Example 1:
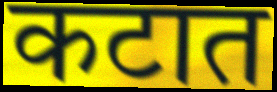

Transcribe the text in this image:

कटात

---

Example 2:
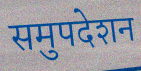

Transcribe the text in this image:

समुपदेशन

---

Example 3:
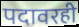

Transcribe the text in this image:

पदावरही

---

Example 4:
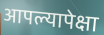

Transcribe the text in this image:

आपल्यापेक्षा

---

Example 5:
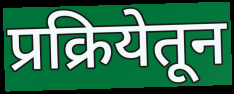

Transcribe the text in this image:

प्रक्रियेतून